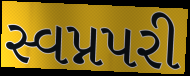
સ્વપ્નપરી